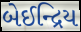
બેઈન્દ્રિય